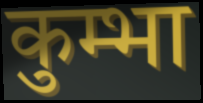
कुम्भा